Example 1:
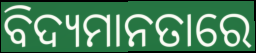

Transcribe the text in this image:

ବିଦ୍ୟମାନତାରେ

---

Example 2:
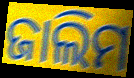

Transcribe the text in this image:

ଜାଲିମ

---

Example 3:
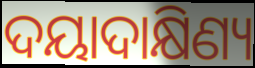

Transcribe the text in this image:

ଦୟାଦାକ୍ଷିଣ୍ୟ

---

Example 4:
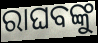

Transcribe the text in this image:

ରାଘବଙ୍କୁ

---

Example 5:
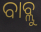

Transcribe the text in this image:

ବାବ୍ଲୁ